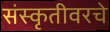
संस्कृतीवरचे